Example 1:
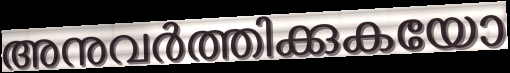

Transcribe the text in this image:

അനുവർത്തിക്കുകയോ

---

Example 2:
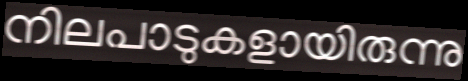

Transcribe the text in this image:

നിലപാടുകളായിരുന്നു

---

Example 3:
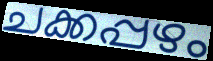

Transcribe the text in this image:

ചക്കപ്പഴം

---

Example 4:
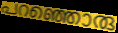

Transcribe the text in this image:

പറഞ്ഞൊരു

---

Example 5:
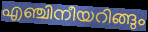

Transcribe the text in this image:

എഞ്ചിനീയറിങ്ങും